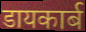
डायकार्ब